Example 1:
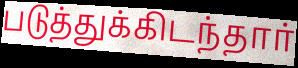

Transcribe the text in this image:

படுத்துக்கிடந்தார்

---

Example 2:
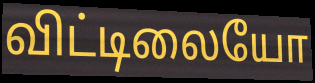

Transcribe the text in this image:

விட்டிலையோ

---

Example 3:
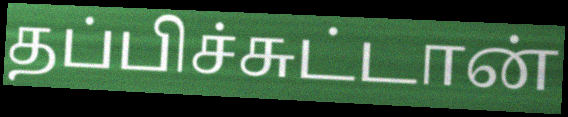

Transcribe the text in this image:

தப்பிச்சுட்டான்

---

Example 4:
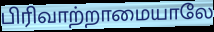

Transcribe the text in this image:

பிரிவாற்றாமையாலே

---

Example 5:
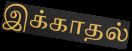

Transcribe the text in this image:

இக்காதல்